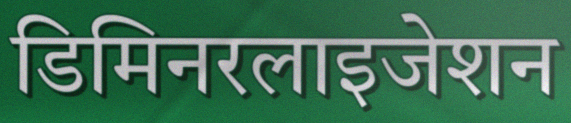
डिमिनरलाइजेशन